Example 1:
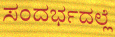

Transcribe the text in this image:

ಸಂದರ್ಭದಲ್ಲೆ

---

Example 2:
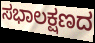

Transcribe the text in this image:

ಸಭಾಲಕ್ಷಣದ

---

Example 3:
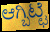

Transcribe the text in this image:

ಆಗ್ಬಿಟ್ಟೆ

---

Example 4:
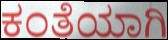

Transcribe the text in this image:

ಕಂತೆಯಾಗಿ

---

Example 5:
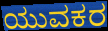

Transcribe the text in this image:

ಯುವಕರ